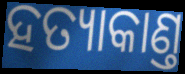
ହତ୍ୟାକାଣ୍ତ